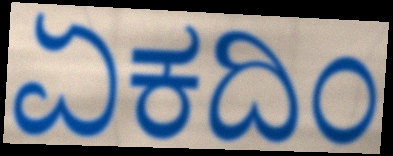
ಏಕದಿಂ